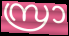
സ്രാ